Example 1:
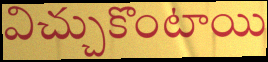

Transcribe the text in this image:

విచ్చుకొంటాయి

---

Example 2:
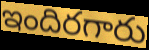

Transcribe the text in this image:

ఇందిరగారు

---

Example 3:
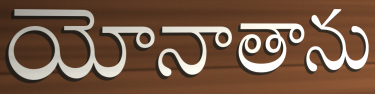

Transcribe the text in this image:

యోనాతాను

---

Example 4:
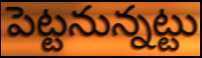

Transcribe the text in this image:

పెట్టనున్నట్టు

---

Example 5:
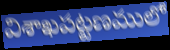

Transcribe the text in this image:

విశాఖపట్టణములో